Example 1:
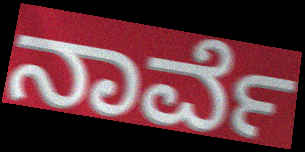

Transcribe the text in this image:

ನಾರ್ವೆ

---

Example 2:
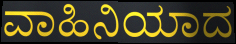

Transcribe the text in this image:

ವಾಹಿನಿಯಾದ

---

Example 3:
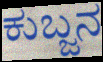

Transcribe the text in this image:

ಕುಬ್ಜನ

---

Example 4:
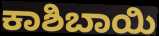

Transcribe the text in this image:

ಕಾಶಿಬಾಯಿ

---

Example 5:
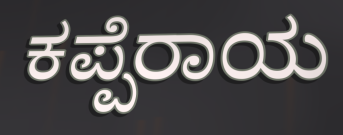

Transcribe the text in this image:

ಕಪ್ಪೆರಾಯ